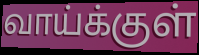
வாய்க்குள்